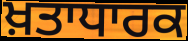
ਖ਼ਤਾਧਾਰਕ